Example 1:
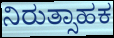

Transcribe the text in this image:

ನಿರುತ್ಸಾಹಕ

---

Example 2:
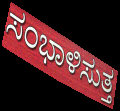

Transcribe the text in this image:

ಸಂಭಾಳಿಸುತ್ತ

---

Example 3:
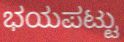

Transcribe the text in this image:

ಭಯಪಟ್ಟು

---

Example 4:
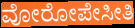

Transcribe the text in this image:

ವೋರೋಪೇಸೀತಿ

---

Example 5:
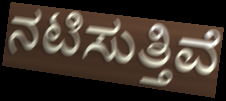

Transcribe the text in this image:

ನಟಿಸುತ್ತಿವೆ